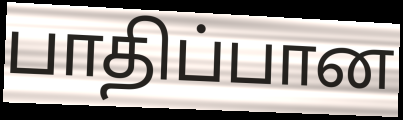
பாதிப்பான